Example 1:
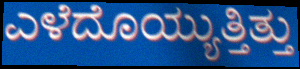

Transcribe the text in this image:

ಎಳೆದೊಯ್ಯುತ್ತಿತ್ತು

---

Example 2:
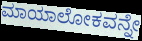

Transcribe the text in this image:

ಮಾಯಾಲೋಕವನ್ನೇ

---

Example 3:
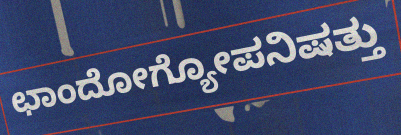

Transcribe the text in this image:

ಛಾಂದೋಗ್ಯೋಪನಿಷತ್ತು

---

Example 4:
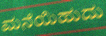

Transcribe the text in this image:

ಮನೆಯಿಹುದು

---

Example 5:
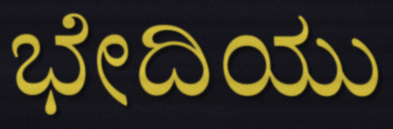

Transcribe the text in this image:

ಭೇದಿಯು